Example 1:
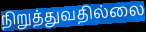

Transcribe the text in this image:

நிறுத்துவதில்லை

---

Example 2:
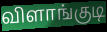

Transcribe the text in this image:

விளாங்குடி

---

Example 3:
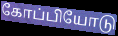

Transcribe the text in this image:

கோப்பியோடு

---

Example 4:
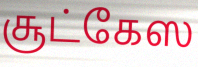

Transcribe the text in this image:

சூட்கேஸ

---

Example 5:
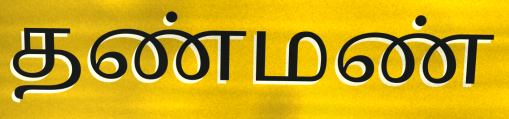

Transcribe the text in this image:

தண்மண்